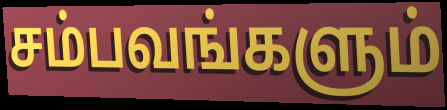
சம்பவங்களும்